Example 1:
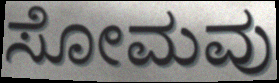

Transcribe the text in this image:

ಸೋಮವು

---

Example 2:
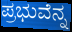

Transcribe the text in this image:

ಪ್ರಭುವೆನ್ನ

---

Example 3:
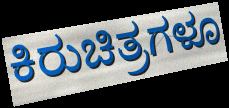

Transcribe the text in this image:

ಕಿರುಚಿತ್ರಗಳೂ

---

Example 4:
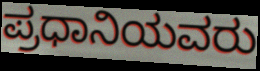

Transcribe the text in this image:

ಪ್ರಧಾನಿಯವರು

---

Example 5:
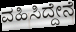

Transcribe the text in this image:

ವಹಿಸಿದ್ದೇನೆ